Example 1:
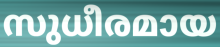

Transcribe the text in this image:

സുധീരമായ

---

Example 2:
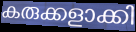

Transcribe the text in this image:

കരുക്കളാക്കി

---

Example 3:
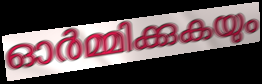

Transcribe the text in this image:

ഓർമ്മിക്കുകയും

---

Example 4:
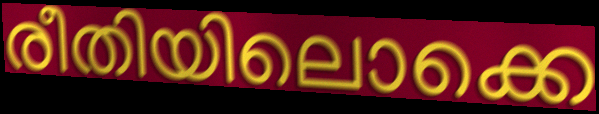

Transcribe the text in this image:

രീതിയിലൊക്കെ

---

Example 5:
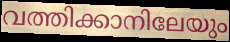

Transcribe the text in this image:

വത്തിക്കാനിലേയും